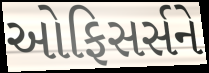
ઓફિસર્સને